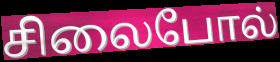
சிலைபோல்